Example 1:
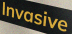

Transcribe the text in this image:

Invasive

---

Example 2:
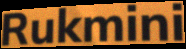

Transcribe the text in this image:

Rukmini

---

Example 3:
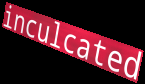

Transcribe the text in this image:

inculcated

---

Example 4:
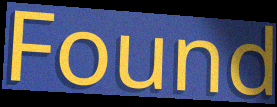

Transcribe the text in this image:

Found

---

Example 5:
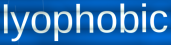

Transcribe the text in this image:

lyophobic